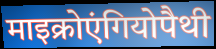
माइक्रोएंगियोपैथी